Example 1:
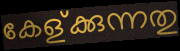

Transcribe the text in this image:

കേള്ക്കുന്നതു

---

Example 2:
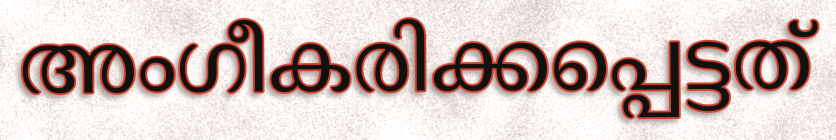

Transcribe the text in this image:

അംഗീകരിക്കപ്പെട്ടത്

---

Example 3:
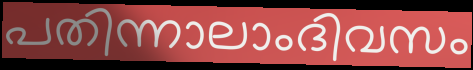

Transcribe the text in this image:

പതിന്നാലാംദിവസം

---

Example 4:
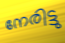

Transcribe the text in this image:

നേരിട്ടു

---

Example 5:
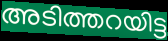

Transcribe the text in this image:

അടിത്തറയിട്ട